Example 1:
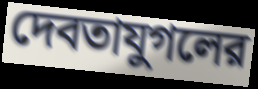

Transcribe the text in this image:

দেবতাযুগলের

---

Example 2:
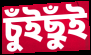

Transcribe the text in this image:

চুঁইছুঁই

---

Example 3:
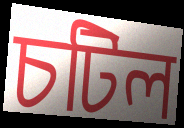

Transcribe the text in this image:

চটিল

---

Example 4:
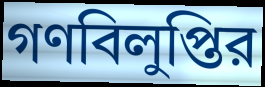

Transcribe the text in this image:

গণবিলুপ্তির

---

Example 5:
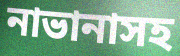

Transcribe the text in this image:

নাভানাসহ